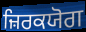
ਜ਼ਿਰਕਯੋਗ